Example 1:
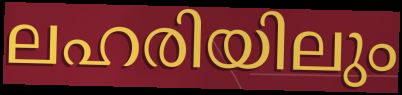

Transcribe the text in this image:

ലഹരിയിലും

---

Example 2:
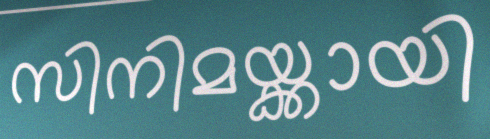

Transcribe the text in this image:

സിനിമയ്ക്കായി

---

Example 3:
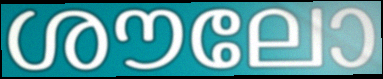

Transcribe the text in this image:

ശൗലോ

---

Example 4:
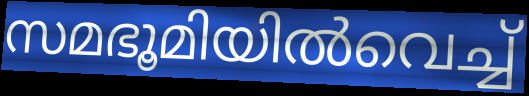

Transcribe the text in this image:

സമഭൂമിയിൽവെച്ച്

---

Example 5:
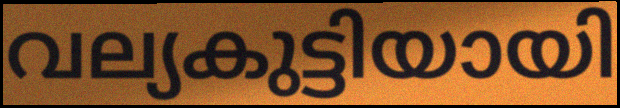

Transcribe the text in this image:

വല്യകുട്ടിയായി